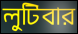
লুটিবার